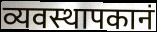
व्यवस्थापकानं